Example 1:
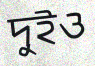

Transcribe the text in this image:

দুইও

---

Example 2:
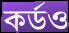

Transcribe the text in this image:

কর্ডও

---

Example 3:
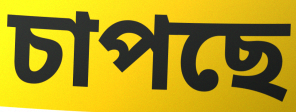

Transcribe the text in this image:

চাপছে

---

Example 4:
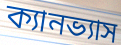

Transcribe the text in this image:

ক্যানভ্যাস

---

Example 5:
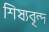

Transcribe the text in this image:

শিষ্যবৃন্দ